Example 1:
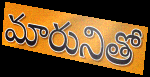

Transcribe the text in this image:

మారునితో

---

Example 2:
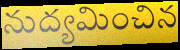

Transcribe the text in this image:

నుద్యమించిన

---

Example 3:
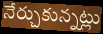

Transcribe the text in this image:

నేర్చుకున్నట్లు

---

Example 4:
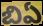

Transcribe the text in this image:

బిఏ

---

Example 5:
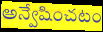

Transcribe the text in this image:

అన్వేషించటం